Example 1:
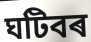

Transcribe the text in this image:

ঘটিবৰ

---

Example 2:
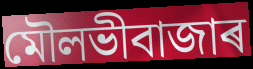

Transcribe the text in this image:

মৌলভীবাজাৰ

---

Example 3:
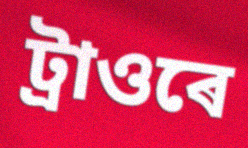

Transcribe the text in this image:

ট্ৰাওৰে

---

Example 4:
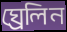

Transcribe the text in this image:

ঘ্ৰেলিন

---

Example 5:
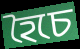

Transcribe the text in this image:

হৈচে